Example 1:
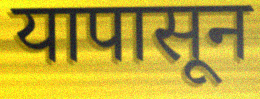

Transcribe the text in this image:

यापासून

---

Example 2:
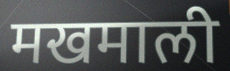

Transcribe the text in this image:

मखमाली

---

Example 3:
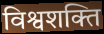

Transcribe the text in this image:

विश्वशक्ति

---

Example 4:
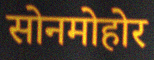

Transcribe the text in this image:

सोनमोहोर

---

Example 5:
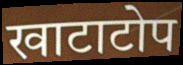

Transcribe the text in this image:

खाटाटोप